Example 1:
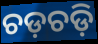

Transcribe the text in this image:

ଚଡ଼ଚଡ଼ି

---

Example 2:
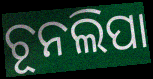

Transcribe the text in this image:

ଚୂନଲିପା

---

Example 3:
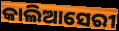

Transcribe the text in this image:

କାଲିଆସେରୀ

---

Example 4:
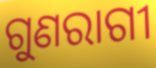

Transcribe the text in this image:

ଗୁଣରାଗୀ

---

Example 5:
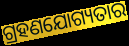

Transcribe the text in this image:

ଗ୍ରହଣଯୋଗ୍ୟତାର